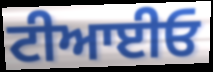
ਟੀਆਈਓ